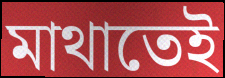
মাথাতেই